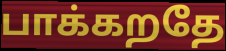
பாக்கறதே